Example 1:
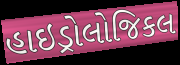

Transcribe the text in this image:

હાઇડ્રોલોજિકલ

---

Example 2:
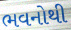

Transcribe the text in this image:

ભવનોથી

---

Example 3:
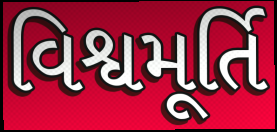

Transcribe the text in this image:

વિશ્વમૂર્તિ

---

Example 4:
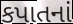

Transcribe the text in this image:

કપાતનાં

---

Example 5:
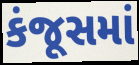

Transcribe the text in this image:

કંજૂસમાં